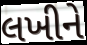
લખીને